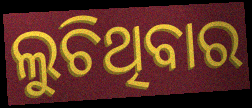
ଲୁଚିଥିବାର